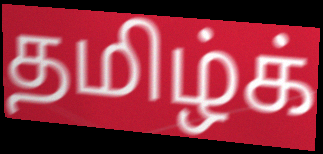
தமிழ்க்